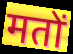
मतों